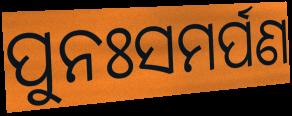
ପୁନଃସମର୍ପଣ